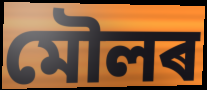
মৌলৰ